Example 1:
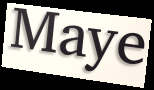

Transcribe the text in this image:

Maye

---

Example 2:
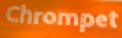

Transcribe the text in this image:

Chrompet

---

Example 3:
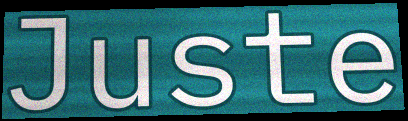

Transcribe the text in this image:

Juste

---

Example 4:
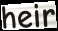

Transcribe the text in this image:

heir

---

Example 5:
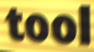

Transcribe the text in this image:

tool